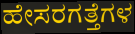
ಹೇಸರಗತ್ತೆಗಳ